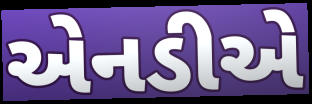
એનડીએ